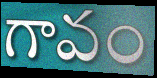
గావం